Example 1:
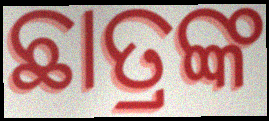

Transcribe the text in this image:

ଛାତ୍ରଙ୍କ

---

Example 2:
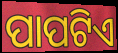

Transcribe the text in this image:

ପାପଟିଏ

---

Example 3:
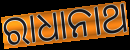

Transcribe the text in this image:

ରାଧାନାଥ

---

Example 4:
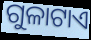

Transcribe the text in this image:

ଗୁଳାଟାଏ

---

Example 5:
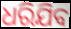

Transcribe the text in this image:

ଧରିଯିବ